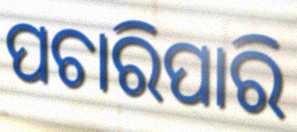
ପଚାରିପାରି